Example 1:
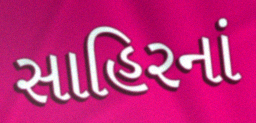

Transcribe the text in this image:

સાહિરનાં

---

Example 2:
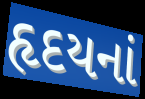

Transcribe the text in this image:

હૃદયનાં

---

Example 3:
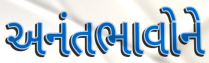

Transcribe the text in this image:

અનંતભાવોને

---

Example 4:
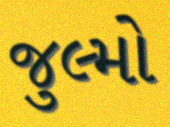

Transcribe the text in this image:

જુલ્મો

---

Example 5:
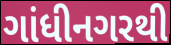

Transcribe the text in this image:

ગાંધીનગરથી